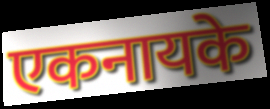
एकनायके